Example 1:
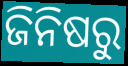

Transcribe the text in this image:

ଜିନିଷରୁ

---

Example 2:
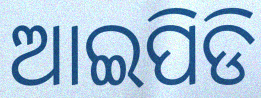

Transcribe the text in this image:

ଆଇପିଡି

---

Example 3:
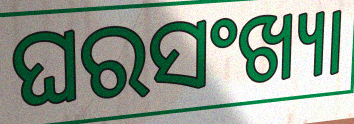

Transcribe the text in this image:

ଘରସଂଖ୍ୟା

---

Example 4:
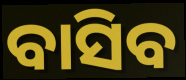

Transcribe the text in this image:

ବାସିବ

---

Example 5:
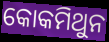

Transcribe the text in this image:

କୋକମିଥୁନ